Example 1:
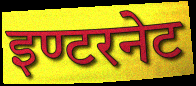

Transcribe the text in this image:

इण्टरनेट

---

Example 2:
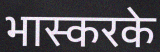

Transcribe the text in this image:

भास्करके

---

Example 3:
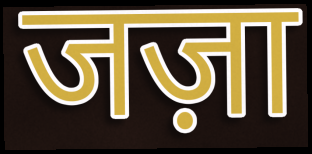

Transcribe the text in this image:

जज़ा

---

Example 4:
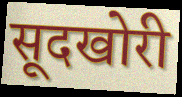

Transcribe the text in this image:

सूदखोरी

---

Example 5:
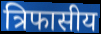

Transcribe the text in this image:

त्रिफासीय